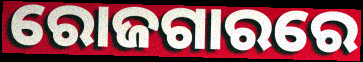
ରୋଜଗାରରେ